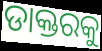
ଡାକ୍ତରକୁ